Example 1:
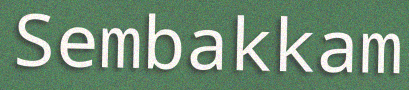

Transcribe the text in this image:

Sembakkam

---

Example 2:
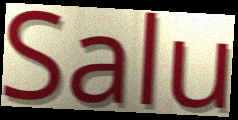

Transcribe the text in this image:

Salu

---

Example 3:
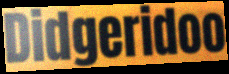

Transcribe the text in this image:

Didgeridoo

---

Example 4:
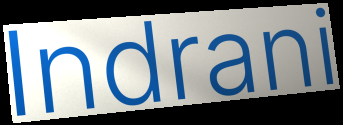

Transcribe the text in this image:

Indrani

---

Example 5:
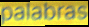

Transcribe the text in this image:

palabras